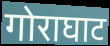
गोराघाट